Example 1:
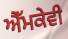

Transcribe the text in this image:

ਐੱਮਕੇਵੀ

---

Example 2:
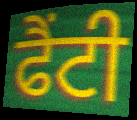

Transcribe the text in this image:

ਫੈਂਟੀ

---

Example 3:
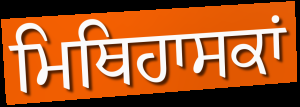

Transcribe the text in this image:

ਮਿਥਿਹਾਸਕਾਂ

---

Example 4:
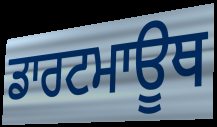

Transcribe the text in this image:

ਡਾਰਟਮਾਊਥ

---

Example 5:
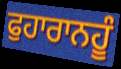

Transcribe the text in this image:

ਫੁਹਾਰਾਨਹੂੰ